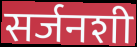
सर्जनशी